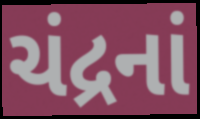
ચંદ્રનાં